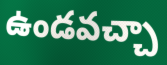
ఉండవచ్చా